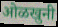
ओळखुनी